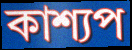
কাশ্যপ